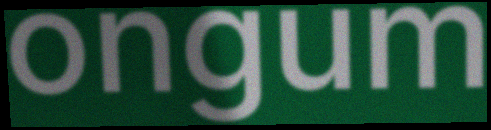
ongum